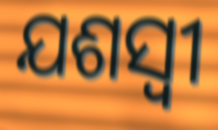
ଯଶସ୍ଵୀ